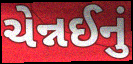
ચેન્નઈનું